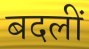
बदलीं